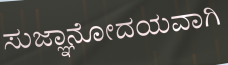
ಸುಜ್ಞಾನೋದಯವಾಗಿ